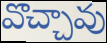
వొచ్చావు